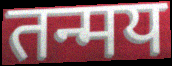
तन्‍मय